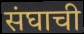
संघाची